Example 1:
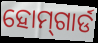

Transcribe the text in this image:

ହୋମ୍‌ଗାର୍ଡ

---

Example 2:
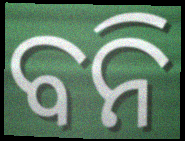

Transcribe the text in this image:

ବନି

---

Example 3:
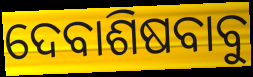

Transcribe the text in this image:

ଦେବାଶିଷବାବୁ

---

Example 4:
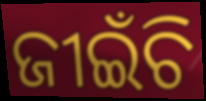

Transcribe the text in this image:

ଜୀଇଁଚି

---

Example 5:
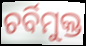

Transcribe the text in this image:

ଚର୍ବିମୁକ୍ତ